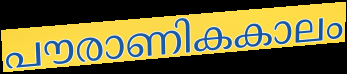
പൗരാണികകാലം